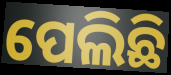
ପେଲିଛି